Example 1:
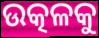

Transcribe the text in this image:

ଉତ୍କଳକୁ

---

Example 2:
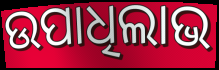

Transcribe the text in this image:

ଉପାଧିଲାଭ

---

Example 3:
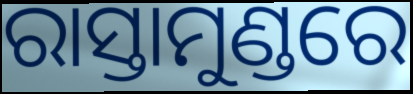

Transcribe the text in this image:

ରାସ୍ତାମୁଣ୍ଡରେ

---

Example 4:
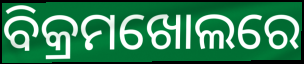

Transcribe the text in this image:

ବିକ୍ରମଖୋଲରେ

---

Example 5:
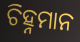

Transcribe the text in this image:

ଚିହ୍ନମାନ